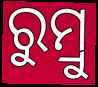
ରୁମ୍ରୁ